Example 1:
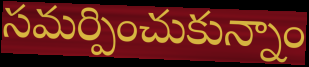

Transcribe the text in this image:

సమర్పించుకున్నాం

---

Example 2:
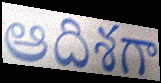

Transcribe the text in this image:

ఆదిశగా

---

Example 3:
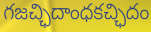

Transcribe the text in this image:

గజచ్ఛిదాంధకచ్ఛిదం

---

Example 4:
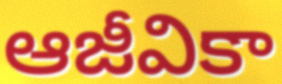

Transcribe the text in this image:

ఆజీవికా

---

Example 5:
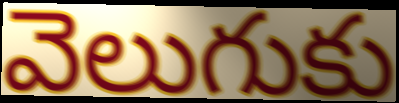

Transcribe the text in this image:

వెలుగుకు